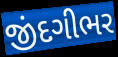
જીંદગીભર